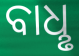
ବାଧୢ